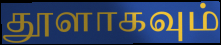
தூளாகவும்